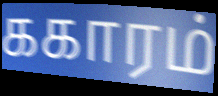
ககாரம்